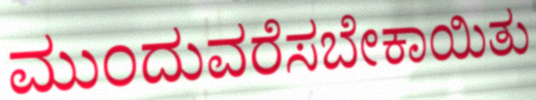
ಮುಂದುವರೆಸಬೇಕಾಯಿತು